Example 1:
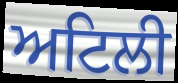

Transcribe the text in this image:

ਅਟਿਲੀ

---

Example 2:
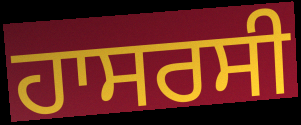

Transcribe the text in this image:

ਹਾਸਰਸੀ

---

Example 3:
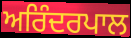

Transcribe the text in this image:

ਅਰਿੰਦਰਪਾਲ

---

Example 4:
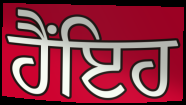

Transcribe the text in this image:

ਹੈਂਇਹ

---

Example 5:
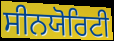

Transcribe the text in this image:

ਸੀਨਯੋਰਿਟੀ